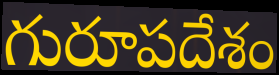
గురూపదేశం